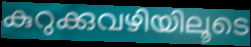
കുറുക്കുവഴിയിലൂടെ